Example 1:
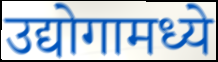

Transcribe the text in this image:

उद्योगामध्ये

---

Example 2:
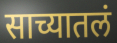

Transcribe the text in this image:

साच्यातलं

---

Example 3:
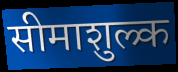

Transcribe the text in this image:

सीमाशुल्क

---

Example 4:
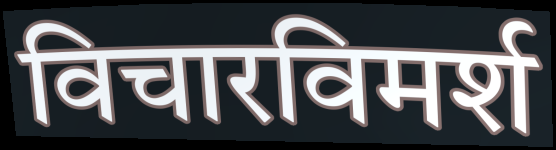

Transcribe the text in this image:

विचारविमर्श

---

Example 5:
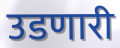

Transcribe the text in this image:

उडणारी